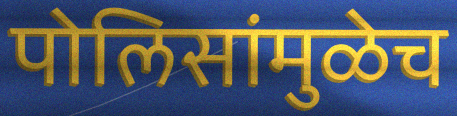
पोलिसांमुळेच